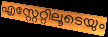
എസ്റ്റേറ്റിലൂടെയും